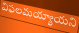
విఫలమయ్యాయని